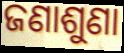
ଜଣାଶୁଣା